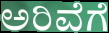
ಅರಿವೆಗೆ